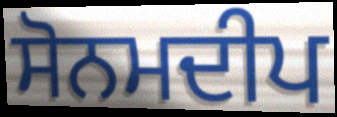
ਸੋਨਮਦੀਪ